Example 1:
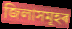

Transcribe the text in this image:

জিলাসমূহৰ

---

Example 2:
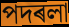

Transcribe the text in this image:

পদৰলা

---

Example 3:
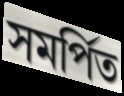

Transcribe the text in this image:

সমৰ্পিত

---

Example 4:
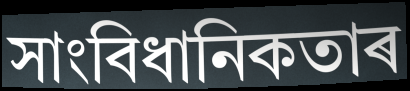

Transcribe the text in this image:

সাংবিধানিকতাৰ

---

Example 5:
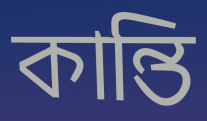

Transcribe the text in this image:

কান্তি